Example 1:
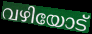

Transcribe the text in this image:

വഴിയോട്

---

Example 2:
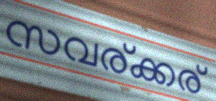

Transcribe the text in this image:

സവര്ക്കര്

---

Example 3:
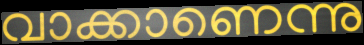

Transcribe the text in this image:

വാക്കാണെന്നു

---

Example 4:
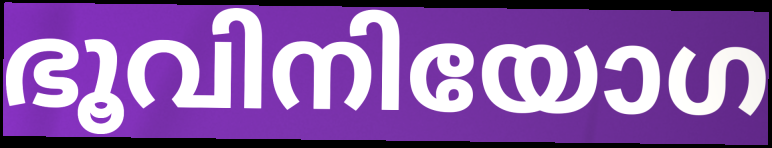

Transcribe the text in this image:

ഭൂവിനിയോഗ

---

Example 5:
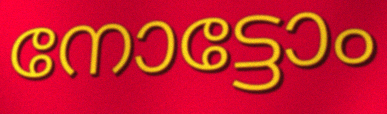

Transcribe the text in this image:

നോട്ടോം